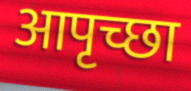
आपृच्छा